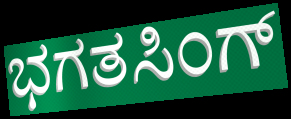
ಭಗತಸಿಂಗ್